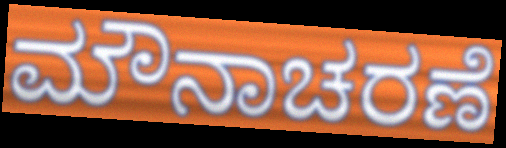
ಮೌನಾಚರಣೆ